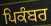
ਪਿਕੰਬਰ